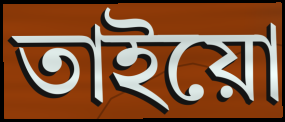
তাইয়ো